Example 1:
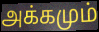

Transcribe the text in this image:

அக்கமும்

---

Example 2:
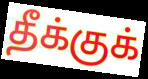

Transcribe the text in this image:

தீக்குக்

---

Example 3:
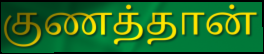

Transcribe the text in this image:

குணத்தான்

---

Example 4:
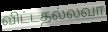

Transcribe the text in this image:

விட்டதல்லவா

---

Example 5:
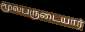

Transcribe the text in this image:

மூலபருடையார்